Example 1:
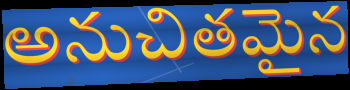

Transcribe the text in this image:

అనుచితమైన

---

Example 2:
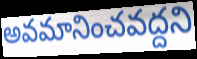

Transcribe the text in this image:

అవమానించవద్దని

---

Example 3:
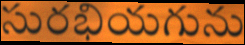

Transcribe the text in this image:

సురభియగును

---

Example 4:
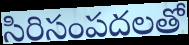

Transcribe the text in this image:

సిరిసంపదలతో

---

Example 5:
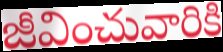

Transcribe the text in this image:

జీవించువారికి